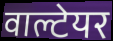
वाल्टेयर